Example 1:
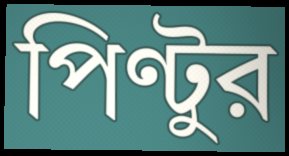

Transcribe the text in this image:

পিণ্টুর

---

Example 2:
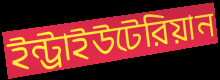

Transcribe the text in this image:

ইন্ট্রাইউটেরিয়ান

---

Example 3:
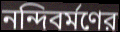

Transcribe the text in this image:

নন্দিবর্মণের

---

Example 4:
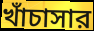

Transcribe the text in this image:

খাঁচাসার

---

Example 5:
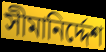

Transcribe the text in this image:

সীমানির্দ্দেশ